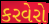
કરવેરો